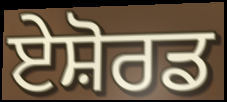
ਏਸ਼ੋਰਡ